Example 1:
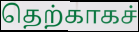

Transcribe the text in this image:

தெற்காகச்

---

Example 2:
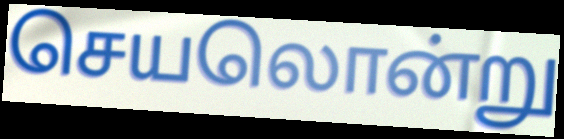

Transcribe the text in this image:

செயலொன்று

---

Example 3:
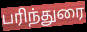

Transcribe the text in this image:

பரிந்துரை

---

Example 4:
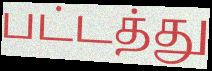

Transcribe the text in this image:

பட்டத்து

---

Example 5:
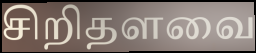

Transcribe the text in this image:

சிறிதளவை